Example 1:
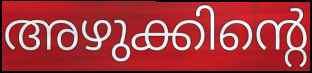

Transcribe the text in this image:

അഴുക്കിന്റെ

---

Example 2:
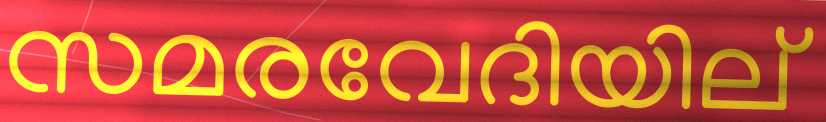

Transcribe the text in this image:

സമരവേദിയില്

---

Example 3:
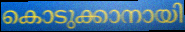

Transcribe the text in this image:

കൊടുക്കാനായി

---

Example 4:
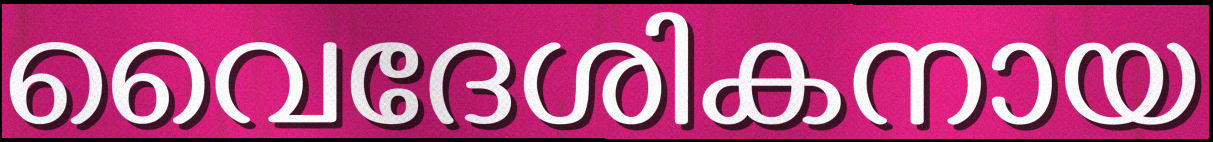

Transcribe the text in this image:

വൈദേശികനായ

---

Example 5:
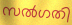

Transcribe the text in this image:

സൽഗതി